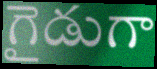
గైడుగా